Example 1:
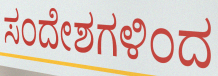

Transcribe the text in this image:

ಸಂದೇಶಗಳಿಂದ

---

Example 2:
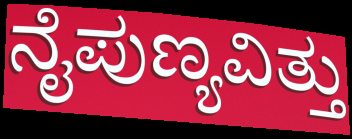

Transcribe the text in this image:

ನೈಪುಣ್ಯವಿತ್ತು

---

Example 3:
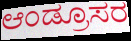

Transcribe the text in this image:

ಆಂಡ್ರೂಸರ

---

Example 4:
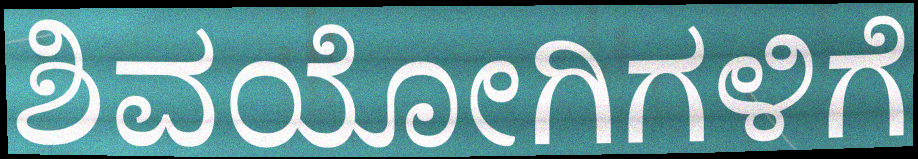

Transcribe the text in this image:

ಶಿವಯೋಗಿಗಳಿಗೆ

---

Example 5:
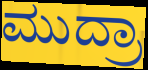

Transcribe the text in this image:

ಮುದ್ರಾ